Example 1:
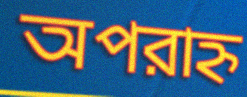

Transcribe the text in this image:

অপরাহ্ন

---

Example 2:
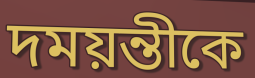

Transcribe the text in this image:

দময়ন্তীকে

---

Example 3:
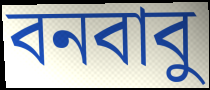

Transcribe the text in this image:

বনবাবু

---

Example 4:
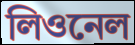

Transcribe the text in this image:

লিওনেল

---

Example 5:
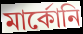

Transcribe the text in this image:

মার্কোনি